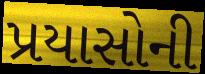
પ્રયાસોની